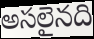
అసలైనది